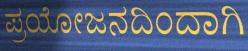
ಪ್ರಯೋಜನದಿಂದಾಗಿ